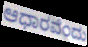
ಆಧಾರವೆಂದು